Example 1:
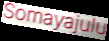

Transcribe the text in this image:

Somayajulu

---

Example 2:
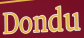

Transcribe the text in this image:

Dondu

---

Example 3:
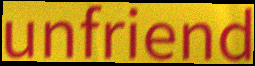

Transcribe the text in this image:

unfriend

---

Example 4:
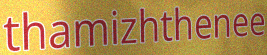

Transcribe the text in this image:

thamizhthenee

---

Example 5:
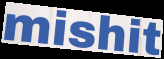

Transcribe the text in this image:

mishit